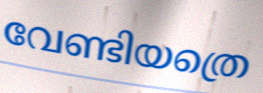
വേണ്ടിയത്രെ